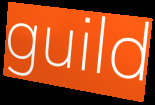
guild